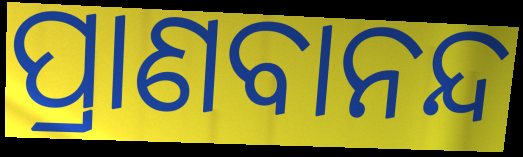
ପ୍ରାଣବାନନ୍ଦ